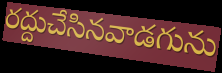
రద్దుచేసినవాడగును